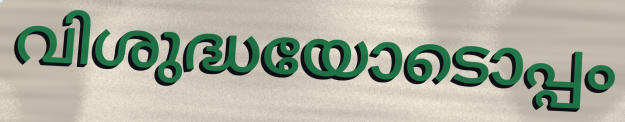
വിശുദ്ധയോടൊപ്പം